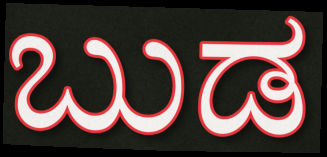
ಬುಡ